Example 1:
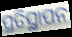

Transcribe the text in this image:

ପ୍ରତିସ୍ଥାପନ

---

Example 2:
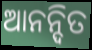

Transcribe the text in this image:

ଆନନ୍ଦିତ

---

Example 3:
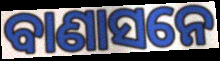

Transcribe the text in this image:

ବାଣାସନେ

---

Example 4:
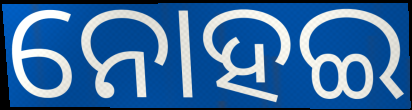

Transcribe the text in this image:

ନୋହଇ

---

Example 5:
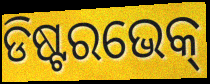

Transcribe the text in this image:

ଡିଷ୍ଟରଭେକ୍